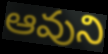
ఆవుని